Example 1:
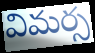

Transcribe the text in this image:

విమర్స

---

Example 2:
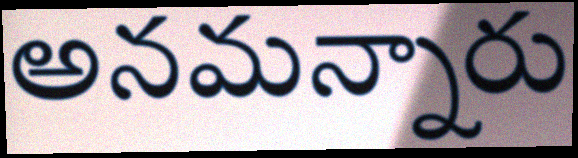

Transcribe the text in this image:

అనమన్నారు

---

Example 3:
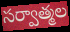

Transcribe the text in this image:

సర్వాత్మల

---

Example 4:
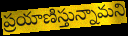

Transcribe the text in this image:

ప్రయాణిస్తున్నామని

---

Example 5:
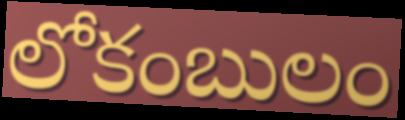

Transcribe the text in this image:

లోకంబులం